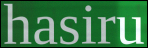
hasiru